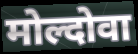
मोल्दोवा